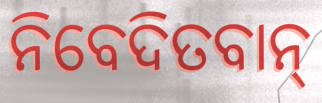
ନିବେଦିତବାନ୍